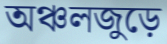
অঞ্চলজুড়ে